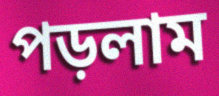
পড়লাম